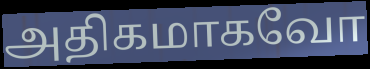
அதிகமாகவோ